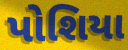
પોશિયા